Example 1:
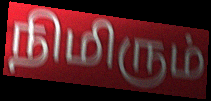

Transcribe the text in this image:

நிமிரும்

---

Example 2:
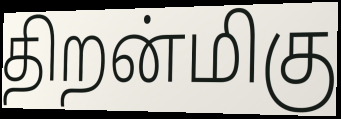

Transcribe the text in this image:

திறன்மிகு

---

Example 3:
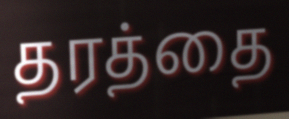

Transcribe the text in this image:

தரத்தை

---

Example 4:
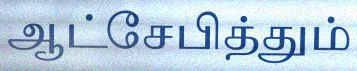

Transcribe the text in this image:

ஆட்சேபித்தும்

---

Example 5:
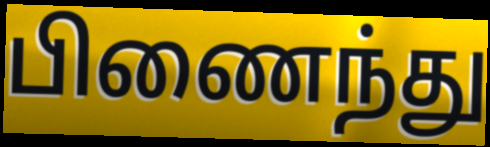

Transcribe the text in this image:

பிணைந்து